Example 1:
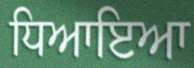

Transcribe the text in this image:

ਧਿਆਇਆ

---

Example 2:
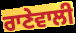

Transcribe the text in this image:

ਰਾਣੇਵਾਲੀ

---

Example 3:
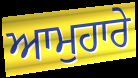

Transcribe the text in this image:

ਆਮੁਹਾਰੇ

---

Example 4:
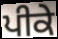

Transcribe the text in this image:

ਪੀਕੇ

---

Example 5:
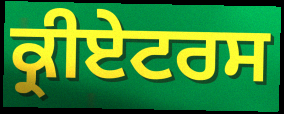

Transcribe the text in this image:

ਕ੍ਰੀਏਟਰਸ